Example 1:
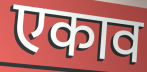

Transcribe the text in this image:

एकाव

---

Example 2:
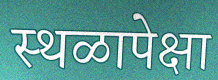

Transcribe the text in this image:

स्थळापेक्षा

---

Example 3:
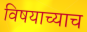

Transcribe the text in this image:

विषयाच्याच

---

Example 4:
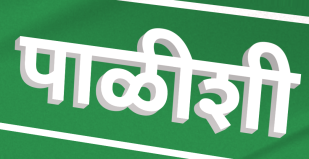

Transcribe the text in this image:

पाळीशी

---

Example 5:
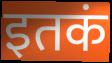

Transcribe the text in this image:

इतकं